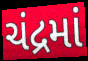
ચંદ્રમાં